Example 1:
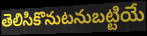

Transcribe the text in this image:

తెలిసికొనుటనుబట్టియే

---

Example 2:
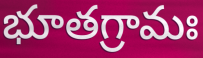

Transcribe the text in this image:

భూతగ్రామః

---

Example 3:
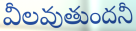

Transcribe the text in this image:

వీలవుతుందనీ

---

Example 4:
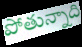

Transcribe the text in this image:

పోతున్నాది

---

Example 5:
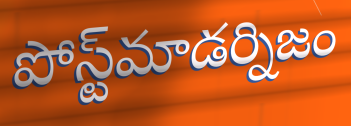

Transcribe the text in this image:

పోస్ట్‌మాడర్నిజం